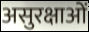
असुरक्षाओं